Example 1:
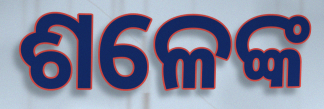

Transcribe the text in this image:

ଶଳେଙ୍କ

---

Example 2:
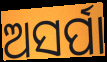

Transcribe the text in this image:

ଅସର୍ପା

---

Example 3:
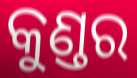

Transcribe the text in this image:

କୁଣ୍ଡର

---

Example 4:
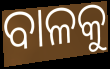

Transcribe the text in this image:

ବାଳକୁ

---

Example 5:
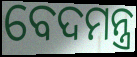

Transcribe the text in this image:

ବେଦମନ୍ତ୍ର